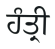
ਹੰਤ੍ਰੀ